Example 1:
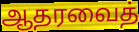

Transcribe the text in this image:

ஆதரவைத்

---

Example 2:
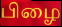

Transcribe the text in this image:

பிழை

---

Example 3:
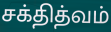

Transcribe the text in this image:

சக்தித்வம்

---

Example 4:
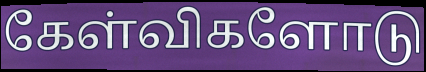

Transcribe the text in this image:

கேள்விகளோடு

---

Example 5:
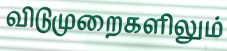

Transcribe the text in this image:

விடுமுறைகளிலும்